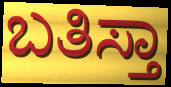
ಬತಿಸ್ತಾ